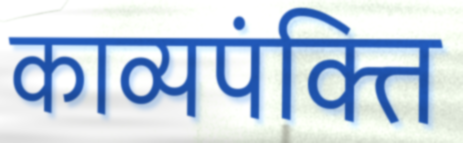
काव्यपंक्ति